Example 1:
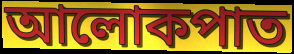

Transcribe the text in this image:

আলোকপাত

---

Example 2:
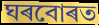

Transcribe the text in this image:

ঘৰবোৰত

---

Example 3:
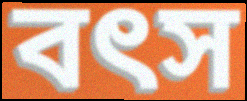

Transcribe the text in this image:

বৎস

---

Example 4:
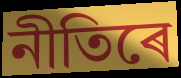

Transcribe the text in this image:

নীতিৰে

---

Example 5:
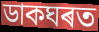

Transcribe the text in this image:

ডাকঘৰত